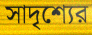
সাদৃশ্যের